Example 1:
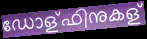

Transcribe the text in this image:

ഡോള്ഫിനുകള്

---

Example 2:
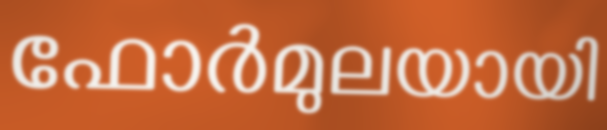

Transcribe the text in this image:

ഫോർമുലയായി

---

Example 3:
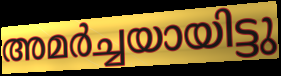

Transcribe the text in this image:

അമർച്ചയായിട്ടു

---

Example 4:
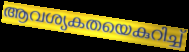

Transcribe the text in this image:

ആവശ്യകതയെകുറിച്ച്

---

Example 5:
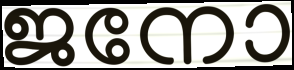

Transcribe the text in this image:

ജനോ